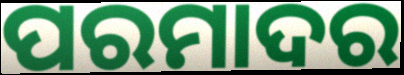
ପରମାଦର